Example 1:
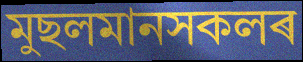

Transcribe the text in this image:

মুছলমানসকলৰ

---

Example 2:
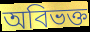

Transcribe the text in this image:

অবিভক্ত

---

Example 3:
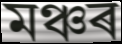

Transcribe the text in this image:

মঞ্চৰ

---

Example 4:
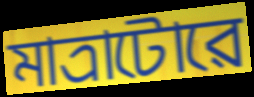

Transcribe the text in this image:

মাত্ৰাটোৱে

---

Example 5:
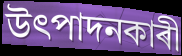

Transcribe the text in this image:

উৎপাদনকাৰী